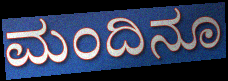
ಮಂದಿನೂ